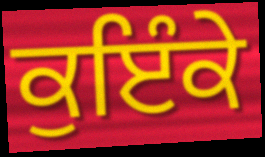
ਕੁਇੰਕੇ